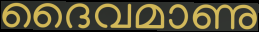
ദൈവമാണു